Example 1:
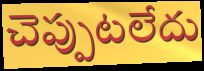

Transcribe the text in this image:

చెప్పుటలేదు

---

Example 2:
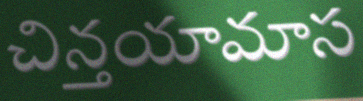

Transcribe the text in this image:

చిన్తయామాస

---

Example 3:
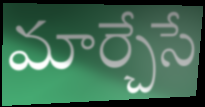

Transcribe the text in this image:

మార్చేసే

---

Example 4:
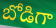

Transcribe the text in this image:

బోడిగా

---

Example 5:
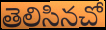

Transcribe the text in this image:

తెలిసినచో